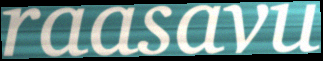
raasavu